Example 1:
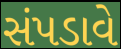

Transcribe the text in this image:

સંપડાવે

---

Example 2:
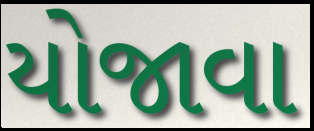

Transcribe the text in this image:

યોજાવા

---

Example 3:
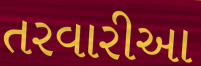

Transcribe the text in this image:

તરવારીઆ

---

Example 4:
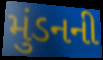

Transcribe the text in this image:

મુંડનની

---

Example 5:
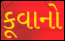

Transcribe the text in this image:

કૂવાનો